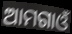
ଆମଗାଓଁ